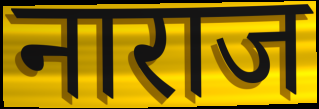
नाराज